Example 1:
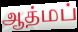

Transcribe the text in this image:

ஆத்மப்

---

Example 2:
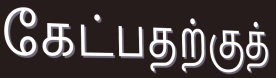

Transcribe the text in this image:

கேட்பதற்குத்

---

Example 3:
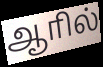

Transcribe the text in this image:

ஆரில்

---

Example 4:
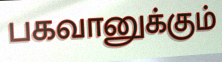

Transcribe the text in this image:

பகவானுக்கும்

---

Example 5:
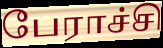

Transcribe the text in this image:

பேராச்சி